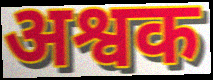
अश्वक